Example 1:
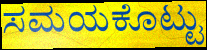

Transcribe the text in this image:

ಸಮಯಕೊಟ್ಟು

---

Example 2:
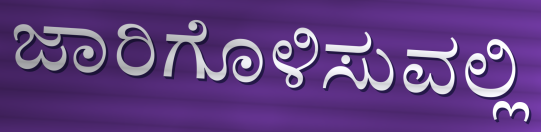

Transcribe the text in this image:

ಜಾರಿಗೊಳಿಸುವಲ್ಲಿ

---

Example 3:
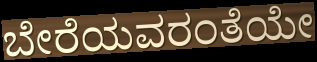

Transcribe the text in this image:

ಬೇರೆಯವರಂತೆಯೇ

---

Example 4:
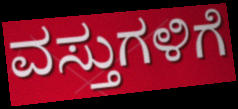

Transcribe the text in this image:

ವಸ್ತುಗಳಿಗೆ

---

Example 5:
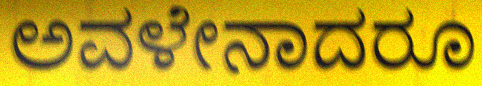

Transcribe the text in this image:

ಅವಳೇನಾದರೂ